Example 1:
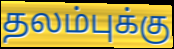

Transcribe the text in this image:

தலம்புக்கு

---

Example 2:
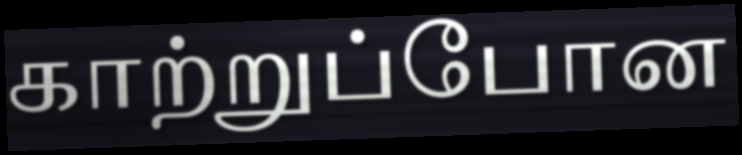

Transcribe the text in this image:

காற்றுப்போன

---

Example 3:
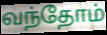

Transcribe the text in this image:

வந்தோம்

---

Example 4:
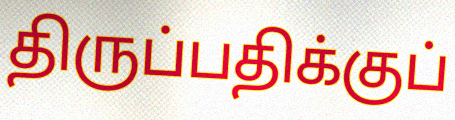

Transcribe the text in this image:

திருப்பதிக்குப்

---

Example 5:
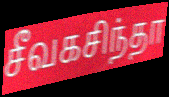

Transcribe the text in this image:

சீவகசிந்தா